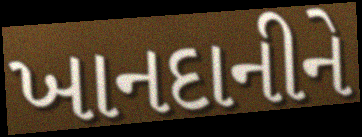
ખાનદાનીને